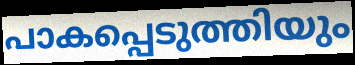
പാകപ്പെടുത്തിയും